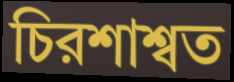
চিরশাশ্বত